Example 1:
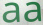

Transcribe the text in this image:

aa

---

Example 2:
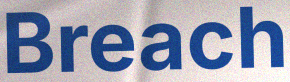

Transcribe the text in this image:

Breach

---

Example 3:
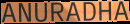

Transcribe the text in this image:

ANURADHA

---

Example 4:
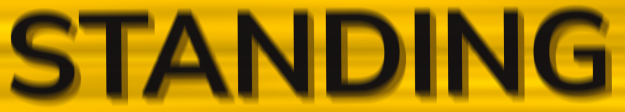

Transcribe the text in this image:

STANDING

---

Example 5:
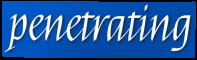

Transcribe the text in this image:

penetrating